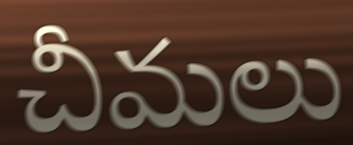
చీమలు